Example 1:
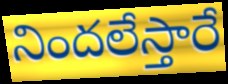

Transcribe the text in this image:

నిందలేస్తారే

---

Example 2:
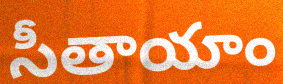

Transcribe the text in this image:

సీతాయాం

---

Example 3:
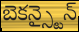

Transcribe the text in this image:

బెకన్స్టైన్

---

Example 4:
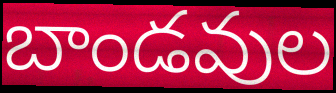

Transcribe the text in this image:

బాండవుల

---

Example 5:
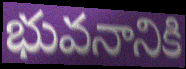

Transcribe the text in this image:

భువనానికి